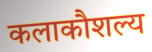
कलाकौशल्य